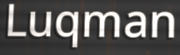
Luqman